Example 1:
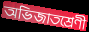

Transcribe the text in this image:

অভিজাতশ্রেণী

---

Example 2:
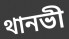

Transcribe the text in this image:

থানভী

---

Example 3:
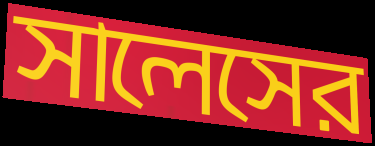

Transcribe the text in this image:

সালেসের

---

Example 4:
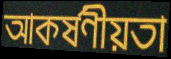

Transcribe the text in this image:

আকর্ষণীয়তা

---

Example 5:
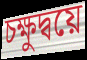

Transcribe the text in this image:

চক্ষুদ্বয়ে